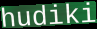
hudiki